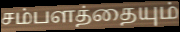
சம்பளத்தையும்